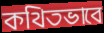
কথিতভাবে